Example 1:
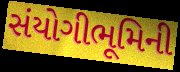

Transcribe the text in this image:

સંયોગીભૂમિની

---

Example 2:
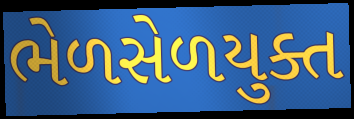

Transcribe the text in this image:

ભેળસેળયુક્ત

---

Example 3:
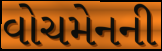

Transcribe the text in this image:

વોચમેનની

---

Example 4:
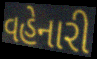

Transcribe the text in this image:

વહેનારી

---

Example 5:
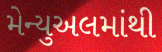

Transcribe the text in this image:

મેન્યુઅલમાંથી